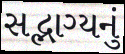
સદ્ભાગ્યનું